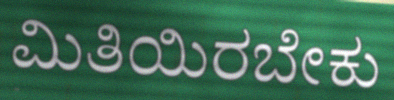
ಮಿತಿಯಿರಬೇಕು